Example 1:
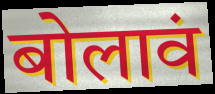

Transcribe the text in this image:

बोलावं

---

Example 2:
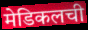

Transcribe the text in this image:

मेडिकलची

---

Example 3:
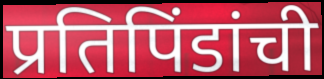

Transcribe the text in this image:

प्रतिपिंडांची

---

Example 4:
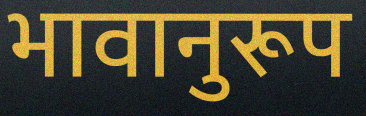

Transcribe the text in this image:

भावानुरूप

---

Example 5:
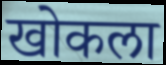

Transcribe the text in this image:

खोकला